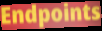
Endpoints